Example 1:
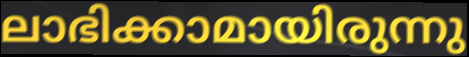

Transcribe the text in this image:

ലാഭിക്കാമായിരുന്നു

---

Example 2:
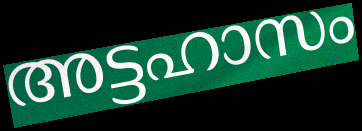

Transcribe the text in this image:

അട്ടഹാസം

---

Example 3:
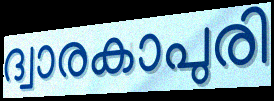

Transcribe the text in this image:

ദ്വാരകാപുരി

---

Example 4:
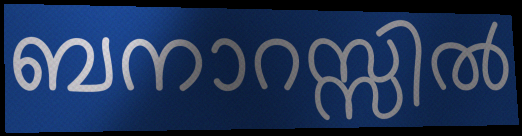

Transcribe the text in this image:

ബനാറസ്സിൽ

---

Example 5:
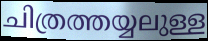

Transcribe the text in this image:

ചിത്രത്തയ്യലുള്ള